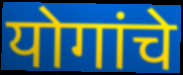
योगांचे